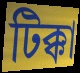
টিক্কা